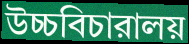
উচ্চবিচারালয়